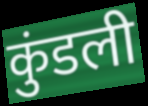
कुंडली